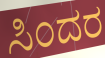
ಸಿಂದರ